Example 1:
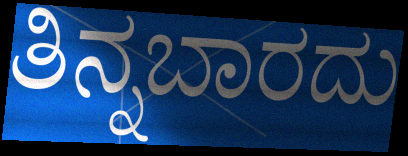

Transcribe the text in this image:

ತಿನ್ನಬಾರದು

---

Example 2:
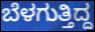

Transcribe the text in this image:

ಬೆಳಗುತ್ತಿದ್ದ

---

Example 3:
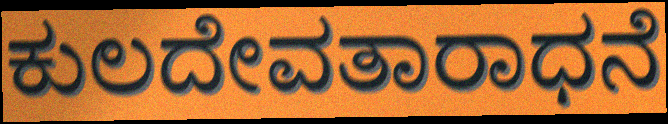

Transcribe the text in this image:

ಕುಲದೇವತಾರಾಧನೆ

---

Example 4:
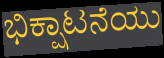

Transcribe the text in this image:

ಭಿಕ್ಷಾಟನೆಯು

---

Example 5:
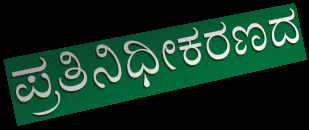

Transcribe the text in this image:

ಪ್ರತಿನಿಧೀಕರಣದ